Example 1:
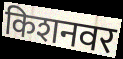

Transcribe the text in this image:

किशनवर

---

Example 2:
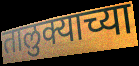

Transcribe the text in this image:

तालुक्याच्या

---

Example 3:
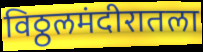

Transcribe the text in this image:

विठ्ठलमंदीरातला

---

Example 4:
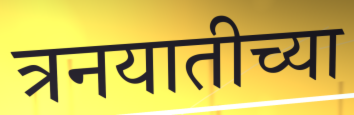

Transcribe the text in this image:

त्रनयातीच्या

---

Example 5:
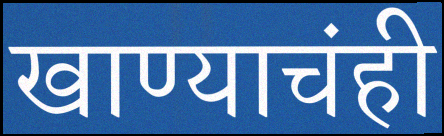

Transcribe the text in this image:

खाण्याचंही